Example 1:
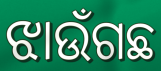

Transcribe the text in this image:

ଝାଉଁଗଛ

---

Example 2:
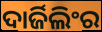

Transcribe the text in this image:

ଦାର୍ଜିଲିଂର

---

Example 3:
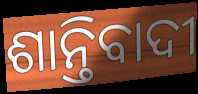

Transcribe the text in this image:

ଶାନ୍ତିବାଦୀ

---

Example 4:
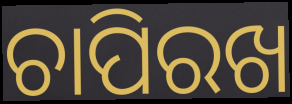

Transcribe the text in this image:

ଚାପିରଖ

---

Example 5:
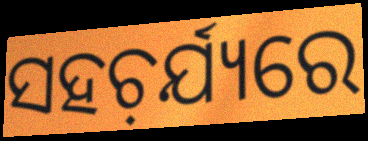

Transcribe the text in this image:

ସହଚ଼ର୍ଯ୍ୟରେ